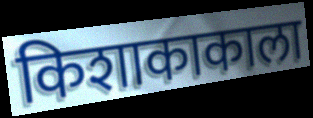
किशाकाकाला